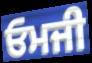
ਓਮਜੀ